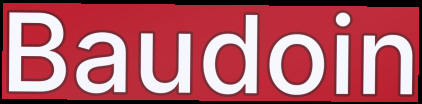
Baudoin